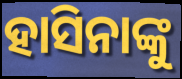
ହାସିନାଙ୍କୁ